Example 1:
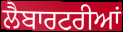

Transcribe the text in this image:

ਲੈਬਾਰਟਰੀਆਂ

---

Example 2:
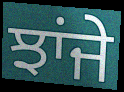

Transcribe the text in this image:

ਝਾਂਜੇ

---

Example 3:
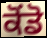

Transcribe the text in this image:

ਕੋਂਡੋ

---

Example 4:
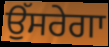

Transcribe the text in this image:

ਉੱਸਰੇਗਾ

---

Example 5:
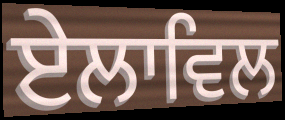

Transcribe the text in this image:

ਏਲਾਵਿਲ